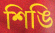
শিঙি